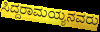
ಸಿದ್ದರಾಮಯ್ಯನವರು